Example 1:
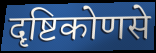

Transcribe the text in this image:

दृष्टिकोणसे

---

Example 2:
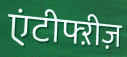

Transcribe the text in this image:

एंटीफ्ऱीज़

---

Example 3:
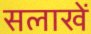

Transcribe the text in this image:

सलाखें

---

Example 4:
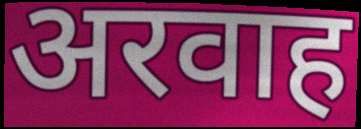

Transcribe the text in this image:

अरवाह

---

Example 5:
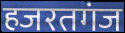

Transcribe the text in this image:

हजरतगंज